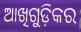
ଆଖିଗୁଡ଼ିକର